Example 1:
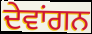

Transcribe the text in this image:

ਦੇਵਾਂਗਨ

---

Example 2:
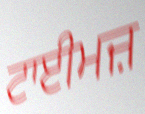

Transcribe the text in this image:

ਟਾਈਮਜ਼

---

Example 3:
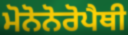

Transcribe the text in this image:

ਮੋਨੋਨੋਰੋਪੈਥੀ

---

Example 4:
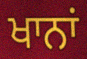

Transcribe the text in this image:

ਖਾਨਾਂ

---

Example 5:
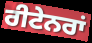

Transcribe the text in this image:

ਰੀਟੇਨਰਾਂ